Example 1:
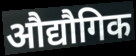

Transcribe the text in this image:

औद्यौगिक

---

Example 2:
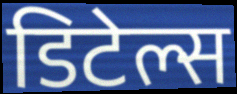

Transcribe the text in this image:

डिटेल्स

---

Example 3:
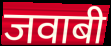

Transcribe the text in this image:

जवाबी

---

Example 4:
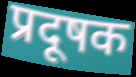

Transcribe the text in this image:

प्रदूषक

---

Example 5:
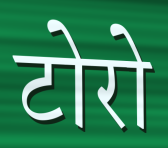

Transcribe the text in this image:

टोरो